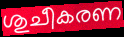
ശുചീകരണ